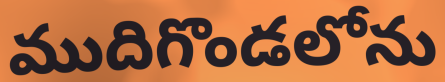
ముదిగొండలోను